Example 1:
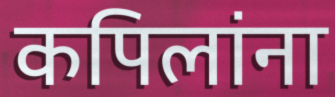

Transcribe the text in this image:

कपिलांना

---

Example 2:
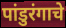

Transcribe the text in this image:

पांडुरंगाचे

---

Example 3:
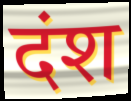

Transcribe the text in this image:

दंश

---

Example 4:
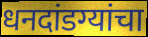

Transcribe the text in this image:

धनदांडग्यांचा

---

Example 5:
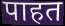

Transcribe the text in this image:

पाहत